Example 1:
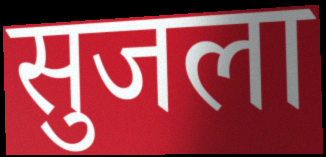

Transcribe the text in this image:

सुजला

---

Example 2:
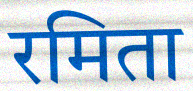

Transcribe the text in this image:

रमिता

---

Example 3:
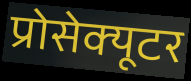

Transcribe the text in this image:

प्रोसेक्यूटर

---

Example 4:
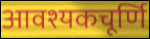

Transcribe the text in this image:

आवश्यकचूर्णि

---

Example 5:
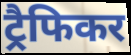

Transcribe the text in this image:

ट्रैफिकर